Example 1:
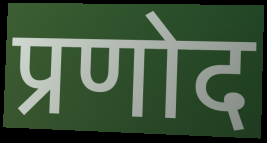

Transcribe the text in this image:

प्रणोद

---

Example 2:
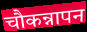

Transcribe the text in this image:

चौकन्नापन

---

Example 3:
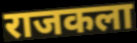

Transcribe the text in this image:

राजकला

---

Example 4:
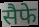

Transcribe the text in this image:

सैफे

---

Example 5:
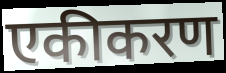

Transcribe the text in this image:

एकीकरण